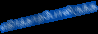
எதிர்த்தாற்போலிருந்த